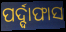
ପର୍ଦ୍ଦାଫାସ